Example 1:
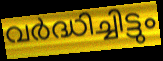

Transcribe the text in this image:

വർദ്ധിച്ചിട്ടും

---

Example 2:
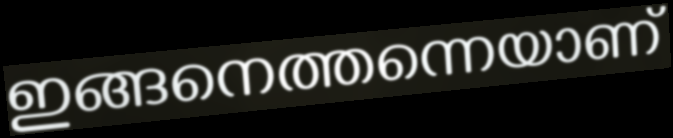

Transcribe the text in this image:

ഇങ്ങനെത്തന്നെയാണ്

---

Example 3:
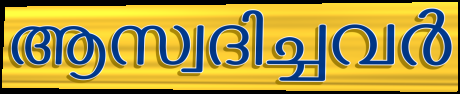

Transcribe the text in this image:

ആസ്വദിച്ചവർ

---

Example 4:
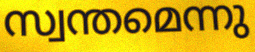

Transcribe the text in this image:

സ്വന്തമെന്നു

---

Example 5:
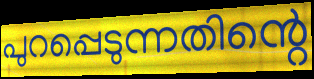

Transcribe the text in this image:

പുറപ്പെടുന്നതിന്റെ